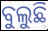
ବୁଲୁଛି